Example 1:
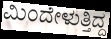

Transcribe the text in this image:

ಮಿಂದೇಳುತ್ತಿದ್ದ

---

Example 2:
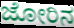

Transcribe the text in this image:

ಜೋರಿನ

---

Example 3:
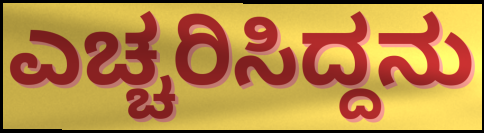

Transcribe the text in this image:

ಎಚ್ಚರಿಸಿದ್ದನು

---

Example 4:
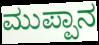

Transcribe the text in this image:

ಮುಪ್ಪಾನ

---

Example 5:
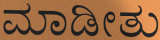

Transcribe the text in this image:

ಮಾಡೀತು